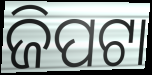
ଜିପଟା